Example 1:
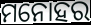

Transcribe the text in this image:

ମନୋହର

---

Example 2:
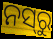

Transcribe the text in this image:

ନସ୍‍ରୁ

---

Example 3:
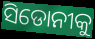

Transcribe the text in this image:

ସିଡୋନୀକୁ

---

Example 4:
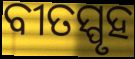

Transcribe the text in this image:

ବୀତସ୍ପୃହ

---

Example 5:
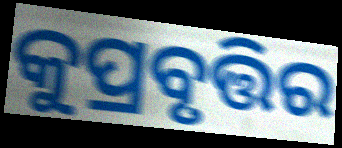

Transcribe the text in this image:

କୁପ୍ରବୃତ୍ତିର